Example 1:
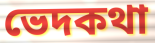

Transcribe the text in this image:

ভেদকথা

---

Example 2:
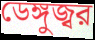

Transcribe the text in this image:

ডেঙ্গুজ্বর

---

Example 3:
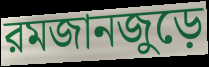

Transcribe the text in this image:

রমজানজুড়ে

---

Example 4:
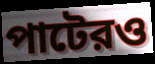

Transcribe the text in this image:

পাটেরও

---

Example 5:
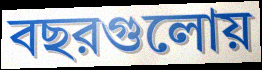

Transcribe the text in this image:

বছরগুলোয়